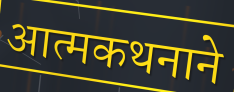
आत्मकथनाने